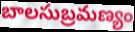
బాలసుబ్రమణ్యం